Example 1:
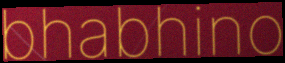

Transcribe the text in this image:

bhabhino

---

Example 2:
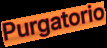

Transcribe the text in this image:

Purgatorio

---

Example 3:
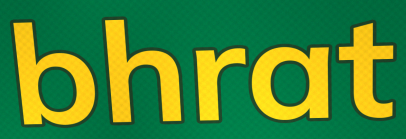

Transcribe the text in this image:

bhrat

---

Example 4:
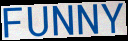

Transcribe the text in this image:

FUNNY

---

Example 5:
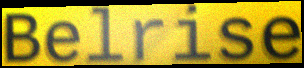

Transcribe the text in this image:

Belrise